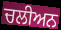
ਚਲੀਅਨ